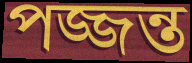
পজ্জন্ত